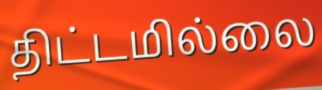
திட்டமில்லை